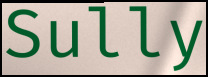
Sully